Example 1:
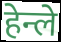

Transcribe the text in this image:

हेन्ले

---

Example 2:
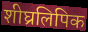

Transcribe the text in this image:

शीघ्रलिपिक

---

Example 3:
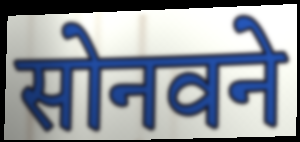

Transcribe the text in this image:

सोनवने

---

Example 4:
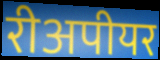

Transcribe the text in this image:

रीअपीयर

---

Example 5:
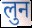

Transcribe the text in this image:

लुन